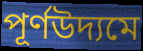
পূর্ণউদ্যমে